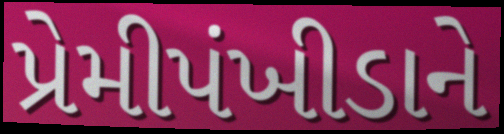
પ્રેમીપંખીડાને